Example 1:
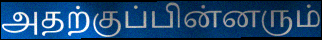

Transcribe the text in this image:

அதற்குப்பின்னரும்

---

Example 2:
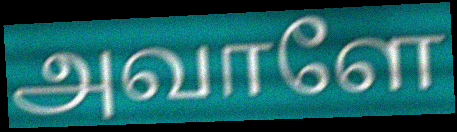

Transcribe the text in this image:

அவாளே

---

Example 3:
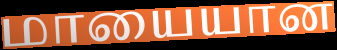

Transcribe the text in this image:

மாயையான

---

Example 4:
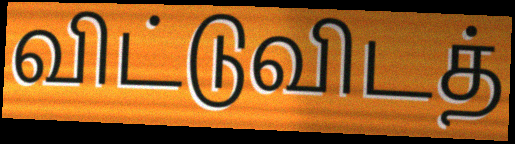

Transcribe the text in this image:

விட்டுவிடத்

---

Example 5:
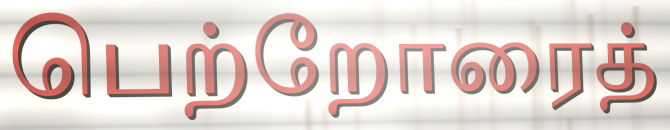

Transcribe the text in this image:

பெற்றோரைத்